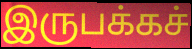
இருபக்கச்